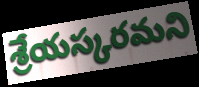
శ్రేయస్కరమని